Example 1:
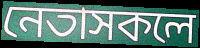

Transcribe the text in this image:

নেতাসকলে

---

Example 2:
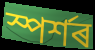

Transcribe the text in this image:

স্পৰ্শৰ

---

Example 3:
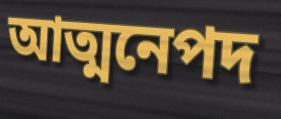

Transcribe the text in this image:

আত্মনেপদ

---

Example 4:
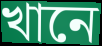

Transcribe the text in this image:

খানে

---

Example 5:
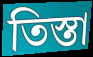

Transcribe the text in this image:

তিস্তা